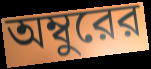
অম্বুরের